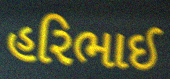
હરિભાઈ